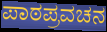
ಪಾಠಪ್ರವಚನ